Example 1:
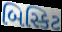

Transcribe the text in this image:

બિસ્કિટ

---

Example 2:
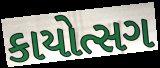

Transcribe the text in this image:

કાયોત્સગ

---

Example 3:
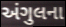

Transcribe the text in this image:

અંગુલના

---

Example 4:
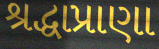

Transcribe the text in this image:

શ્રદ્ધાપ્રાણા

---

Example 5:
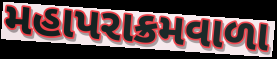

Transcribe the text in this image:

મહાપરાક્રમવાળા